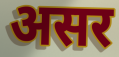
असर